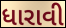
ધારાવી